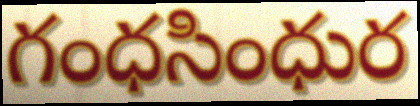
గంధసింధుర